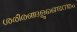
ശരീരങ്ങളുണ്ടെന്നും